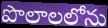
పొలాలలోను